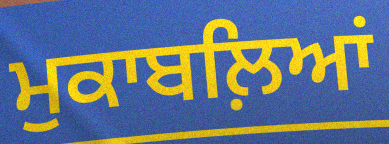
ਮੁਕਾਬਲ਼ਿਆਂ